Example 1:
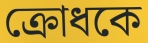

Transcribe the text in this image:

ক্রোধকে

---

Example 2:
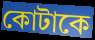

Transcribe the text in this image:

কোটাকে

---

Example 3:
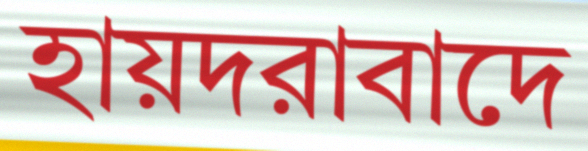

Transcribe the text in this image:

হায়দরাবাদে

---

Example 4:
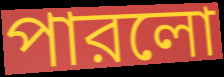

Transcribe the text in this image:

পারলো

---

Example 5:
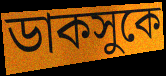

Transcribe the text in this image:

ডাকসুকে